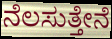
ನೆಲಸುತ್ತೇನೆ